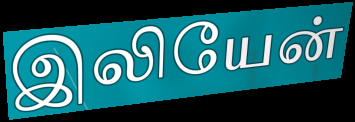
இலியேன்